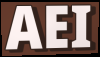
AEI